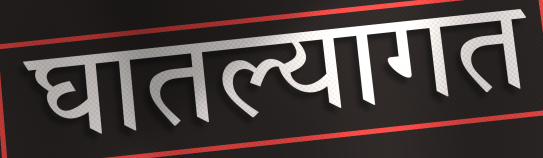
घातल्यागत